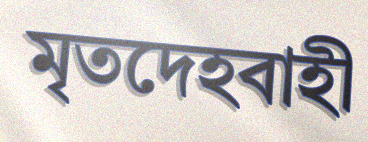
মৃতদেহবাহী